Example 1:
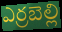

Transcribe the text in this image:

ఎర్రబెల్లి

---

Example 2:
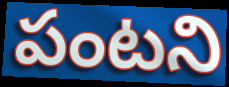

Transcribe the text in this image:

పంటని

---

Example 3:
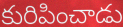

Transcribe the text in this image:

కురిపించాడు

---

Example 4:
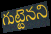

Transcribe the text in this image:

గుట్టెనని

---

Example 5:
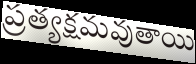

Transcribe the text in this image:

ప్రత్యక్షమవుతాయి